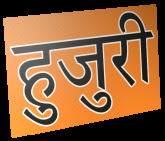
हुजुरी